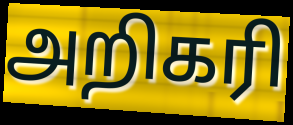
அறிகரி